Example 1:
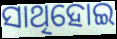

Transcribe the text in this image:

ସାଥିହୋଇ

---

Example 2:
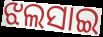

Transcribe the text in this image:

ଝଲସାଇ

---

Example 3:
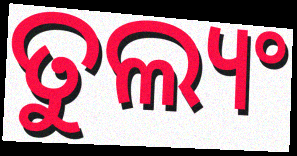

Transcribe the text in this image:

ତୁଲ୍ୟଂ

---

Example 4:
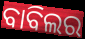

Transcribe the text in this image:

ବାବିଲର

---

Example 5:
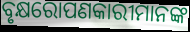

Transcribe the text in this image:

ବୃକ୍ଷରୋପଣକାରୀମାନଙ୍କ